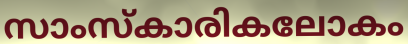
സാംസ്കാരികലോകം